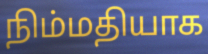
நிம்மதியாக